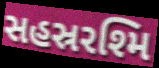
સહસ્રરશ્મિ